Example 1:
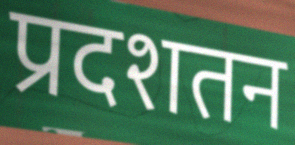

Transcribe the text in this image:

प्रदशतन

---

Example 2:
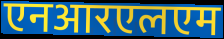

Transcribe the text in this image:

एनआरएलएम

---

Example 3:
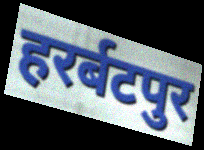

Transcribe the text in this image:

हरर्बटपुर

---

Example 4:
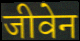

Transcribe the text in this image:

जीवेन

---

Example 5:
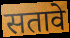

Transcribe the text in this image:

सतावे